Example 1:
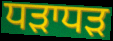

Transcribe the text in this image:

ਧੜਾਧੜ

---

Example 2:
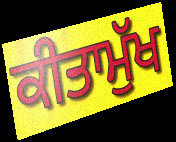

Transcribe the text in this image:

ਕੀਤਾਮੁੱਖ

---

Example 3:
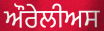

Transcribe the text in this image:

ਔਰੇਲੀਅਸ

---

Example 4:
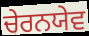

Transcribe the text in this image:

ਚੇਰਨਯੇਵ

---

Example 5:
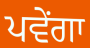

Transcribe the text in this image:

ਪਵੇਂਗਾ